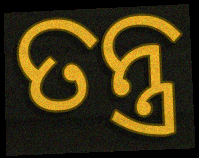
ତନ୍ତ୍ର